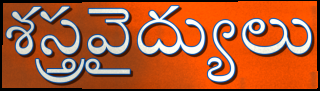
శస్త్రవైద్యులు